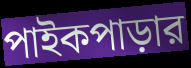
পাইকপাড়ার